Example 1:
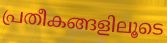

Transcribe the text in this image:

പ്രതീകങ്ങളിലൂടെ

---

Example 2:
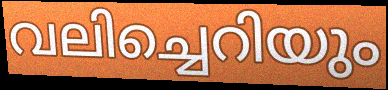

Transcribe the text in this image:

വലിച്ചെറിയും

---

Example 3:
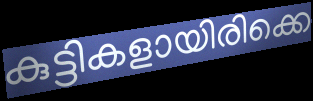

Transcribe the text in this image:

കുട്ടികളായിരിക്കെ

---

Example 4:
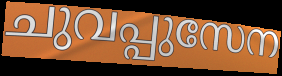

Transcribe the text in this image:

ചുവപ്പുസേന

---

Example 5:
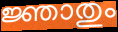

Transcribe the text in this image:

ജ്ഞാതും